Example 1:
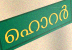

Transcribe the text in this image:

ഹൊറർ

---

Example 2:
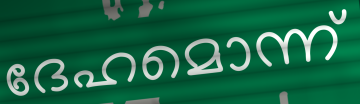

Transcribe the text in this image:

ദേഹമൊന്ന്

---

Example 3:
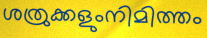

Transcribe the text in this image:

ശത്രുക്കളുംനിമിത്തം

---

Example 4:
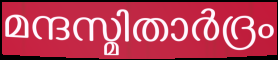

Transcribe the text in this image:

മന്ദസ്മിതാർദ്രം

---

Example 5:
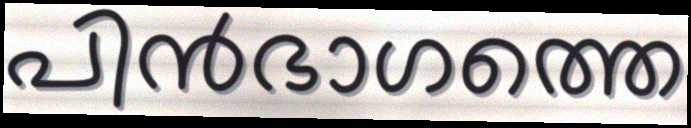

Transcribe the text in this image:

പിൻഭാഗത്തെ